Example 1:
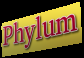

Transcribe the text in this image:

Phylum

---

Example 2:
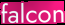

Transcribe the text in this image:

falcon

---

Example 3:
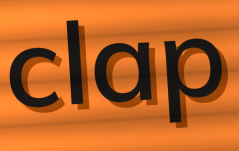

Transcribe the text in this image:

clap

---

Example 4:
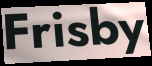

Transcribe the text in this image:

Frisby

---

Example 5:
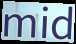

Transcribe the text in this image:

mid